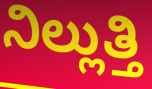
ನಿಲ್ಲುತ್ತಿ